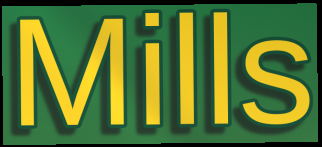
Mills